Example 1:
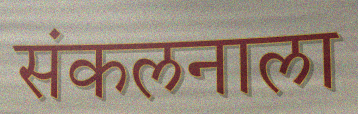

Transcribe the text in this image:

संकलनाला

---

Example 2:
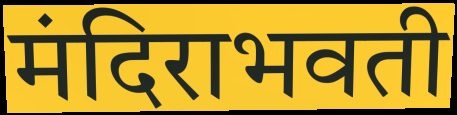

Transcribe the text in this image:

मंदिराभवती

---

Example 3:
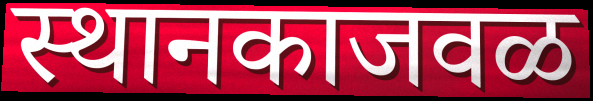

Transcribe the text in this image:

स्थानकाजवळ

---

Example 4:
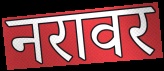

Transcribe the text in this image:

नरावर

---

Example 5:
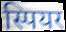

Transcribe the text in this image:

स्पियर